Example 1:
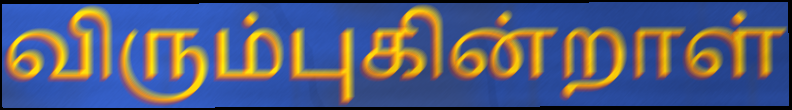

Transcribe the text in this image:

விரும்புகின்றாள்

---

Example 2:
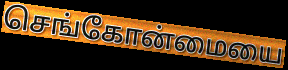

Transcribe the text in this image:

செங்கோன்மையை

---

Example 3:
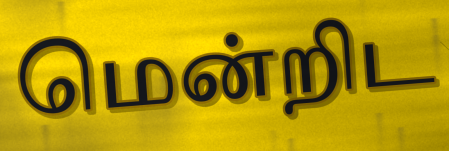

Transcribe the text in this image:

மென்றிட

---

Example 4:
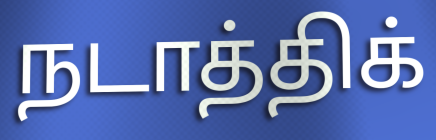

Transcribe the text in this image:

நடாத்திக்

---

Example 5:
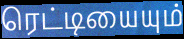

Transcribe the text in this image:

ரெட்டியையும்